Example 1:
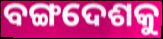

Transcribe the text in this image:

ବଙ୍ଗଦେଶକୁ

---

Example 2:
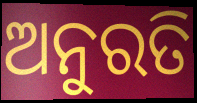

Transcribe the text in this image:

ଅନୁରତି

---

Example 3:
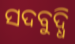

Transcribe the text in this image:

ସଦବୁଦ୍ଧି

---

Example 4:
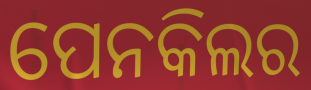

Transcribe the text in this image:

ପେନକିଲର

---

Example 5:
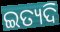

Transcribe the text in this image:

ଇତ୍ୟଦି